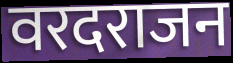
वरदराजन